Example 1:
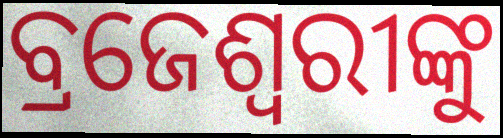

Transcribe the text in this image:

ବ୍ରଜେଶ୍ୱରୀଙ୍କୁ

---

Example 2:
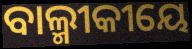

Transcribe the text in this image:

ବାଲ୍ମୀକୀୟେ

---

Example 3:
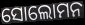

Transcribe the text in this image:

ସୋଲୋମନ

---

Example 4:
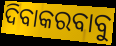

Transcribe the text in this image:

ଦିବାକରବାବୁ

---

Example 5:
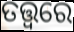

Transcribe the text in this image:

ତତ୍ତ୍ୱରେ